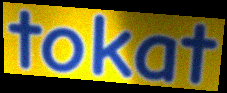
tokat